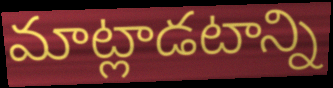
మాట్లాడటాన్ని